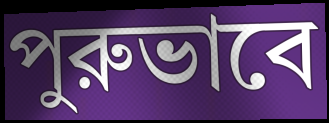
পুরুভাবে